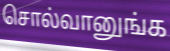
சொல்வானுங்க